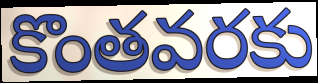
కొంతవరకు